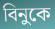
বিনুকে